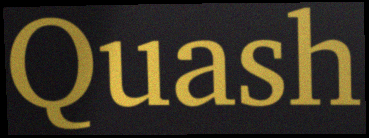
Quash